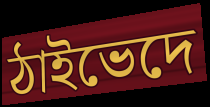
ঠাইভেদে